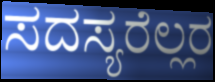
ಸದಸ್ಯರೆಲ್ಲರ